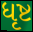
ધૃષ્ટ